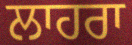
ਲਾਹਰਾ